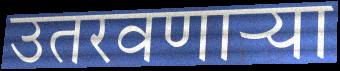
उतरवणाऱ्या